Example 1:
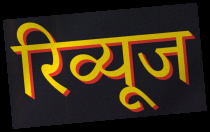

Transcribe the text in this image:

रिव्यूज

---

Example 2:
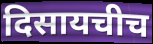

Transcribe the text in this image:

दिसायचीच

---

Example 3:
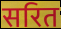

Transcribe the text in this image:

सरित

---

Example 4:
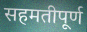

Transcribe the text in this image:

सहमतीपूर्ण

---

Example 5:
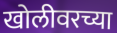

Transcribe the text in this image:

खोलीवरच्या